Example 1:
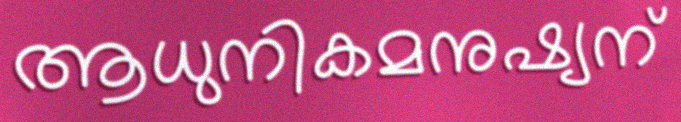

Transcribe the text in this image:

ആധുനികമനുഷ്യന്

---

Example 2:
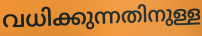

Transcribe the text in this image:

വധിക്കുന്നതിനുള്ള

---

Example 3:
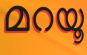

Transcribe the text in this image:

മറയൂ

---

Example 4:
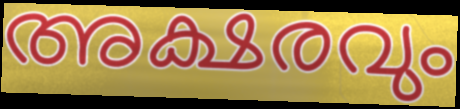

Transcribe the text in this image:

അക്ഷരവും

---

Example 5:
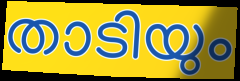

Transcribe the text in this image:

താടിയും